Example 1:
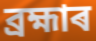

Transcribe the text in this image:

ব্ৰহ্মাৰ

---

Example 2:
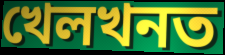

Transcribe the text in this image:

খেলখনত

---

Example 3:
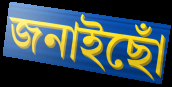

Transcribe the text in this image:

জনাইছোঁ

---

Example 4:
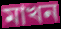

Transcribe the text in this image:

মাখন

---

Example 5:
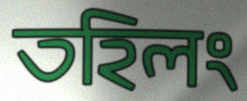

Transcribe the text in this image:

তহিলং